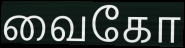
வைகோ